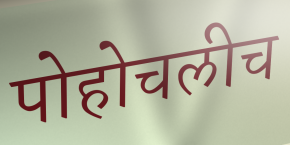
पोहोचलीच